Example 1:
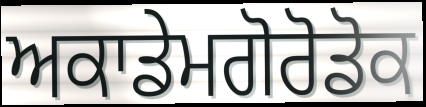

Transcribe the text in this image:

ਅਕਾਡੇਮਗੋਰੋਡੋਕ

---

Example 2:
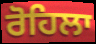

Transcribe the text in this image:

ਰੋਹਿਲਾ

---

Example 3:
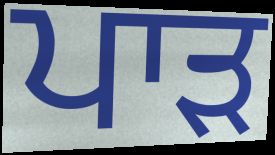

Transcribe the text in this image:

ਪਾੜ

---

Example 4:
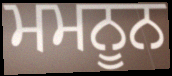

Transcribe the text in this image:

ਮਮਨੂਨ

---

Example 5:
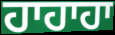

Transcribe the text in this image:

ਹਾਹਾਹਾ